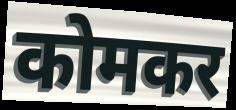
कोमकर